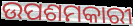
ଉପଶମକାରୀ